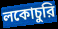
লকোচুরি